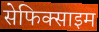
सेफिक्साइम